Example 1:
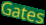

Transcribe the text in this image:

Gates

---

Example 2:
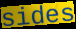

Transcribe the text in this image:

sides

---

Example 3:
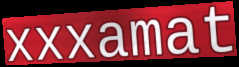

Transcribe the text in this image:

xxxamat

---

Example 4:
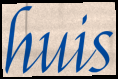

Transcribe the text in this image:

huis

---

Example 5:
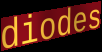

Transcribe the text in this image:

diodes